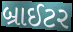
બ્રાઈટર